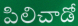
పిలిచాడో